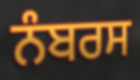
ਨੰਬਰਸ